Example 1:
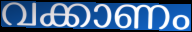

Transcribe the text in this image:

വക്കാണം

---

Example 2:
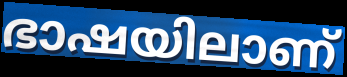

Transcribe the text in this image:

ഭാഷയിലാണ്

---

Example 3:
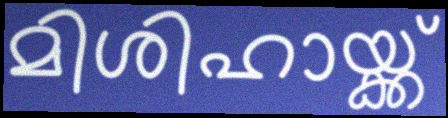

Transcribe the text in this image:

മിശിഹായ്ക്ക്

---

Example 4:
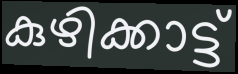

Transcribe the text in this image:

കുഴിക്കാട്ട്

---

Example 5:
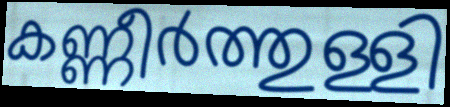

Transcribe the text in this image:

കണ്ണീർത്തുള്ളി